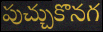
పుచ్చుకొనగ